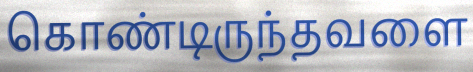
கொண்டிருந்தவளை